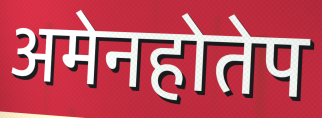
अमेनहोतेप